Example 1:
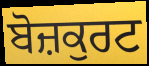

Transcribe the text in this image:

ਬੋਜ਼ਕੁਰਟ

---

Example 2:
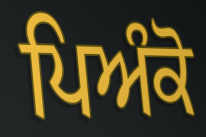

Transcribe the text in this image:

ਪਿਅੰਕੋ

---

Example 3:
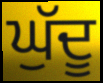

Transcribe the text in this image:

ਘੁੱਦੂ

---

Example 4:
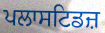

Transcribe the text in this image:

ਪਲਾਸਟਿਡਜ਼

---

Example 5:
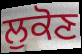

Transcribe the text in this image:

ਲੁਕੋਣ